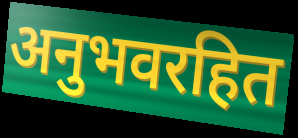
अनुभवरहित